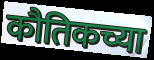
कौतिकच्या